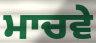
ਮਾਚਵੇ